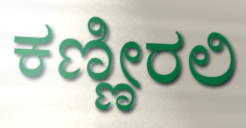
ಕಣ್ಣೀರಲಿ